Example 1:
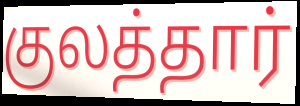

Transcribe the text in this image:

குலத்தார்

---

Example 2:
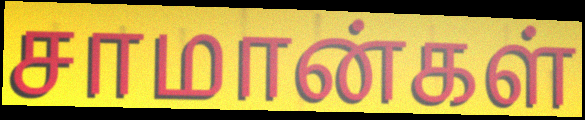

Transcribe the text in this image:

சாமான்கள்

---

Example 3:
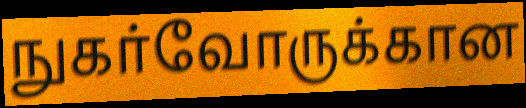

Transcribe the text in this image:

நுகர்வோருக்கான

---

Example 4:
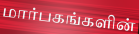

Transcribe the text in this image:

மார்பகங்களின்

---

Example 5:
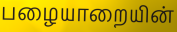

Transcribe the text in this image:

பழையாறையின்